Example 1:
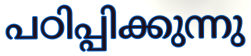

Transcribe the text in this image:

പഠിപ്പിക്കുന്നു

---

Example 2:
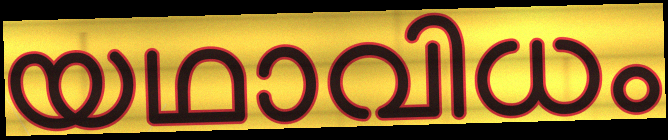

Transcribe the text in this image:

യഥാവിധം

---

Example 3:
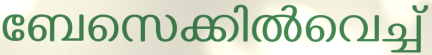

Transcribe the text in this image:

ബേസെക്കിൽവെച്ച്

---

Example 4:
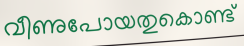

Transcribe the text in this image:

വീണുപോയതുകൊണ്ട്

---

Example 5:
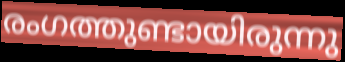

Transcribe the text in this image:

രംഗത്തുണ്ടായിരുന്നു